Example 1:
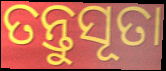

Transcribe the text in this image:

ତନ୍ତୁସୂତା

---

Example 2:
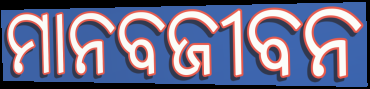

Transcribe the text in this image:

ମାନବଜୀବନ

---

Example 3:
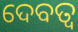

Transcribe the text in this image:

ଦେବତ୍ୱ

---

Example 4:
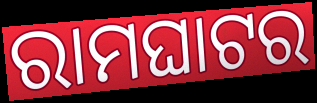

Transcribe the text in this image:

ରାମଘାଟର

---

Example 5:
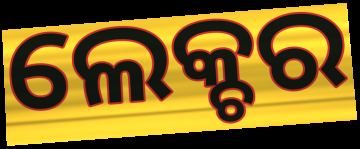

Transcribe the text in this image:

ଲେକ୍ଚର